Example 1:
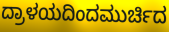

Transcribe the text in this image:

ದ್ರಾಳಯದಿಂದಮುರ್ಚಿದ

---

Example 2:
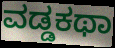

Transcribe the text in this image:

ವಡ್ಡಕಥಾ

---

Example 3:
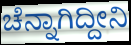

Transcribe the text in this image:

ಚೆನ್ನಾಗಿದ್ದೀನಿ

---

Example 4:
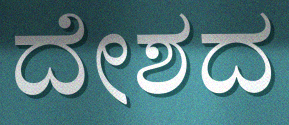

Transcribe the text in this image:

ದೇಶದ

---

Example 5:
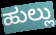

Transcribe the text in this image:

ಹುಲ್ಲು